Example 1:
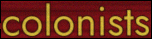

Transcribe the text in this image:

colonists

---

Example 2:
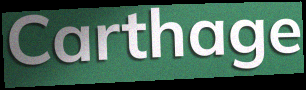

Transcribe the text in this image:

Carthage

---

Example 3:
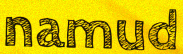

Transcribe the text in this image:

namud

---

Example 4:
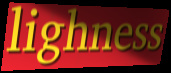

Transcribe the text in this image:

lighness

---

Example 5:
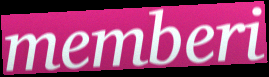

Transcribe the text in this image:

memberi